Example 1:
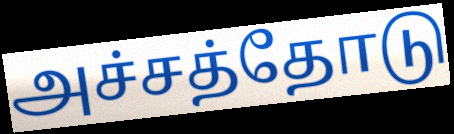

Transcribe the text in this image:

அச்சத்தோடு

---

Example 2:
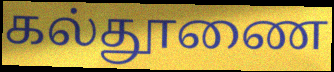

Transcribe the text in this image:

கல்தூணை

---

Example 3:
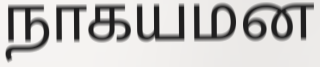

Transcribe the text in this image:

நாகயமன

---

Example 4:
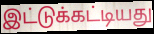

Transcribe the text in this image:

இட்டுக்கட்டியது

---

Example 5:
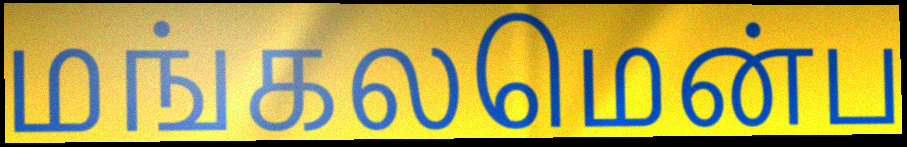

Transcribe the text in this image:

மங்கலமென்ப